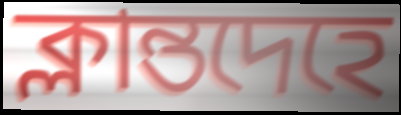
ক্লান্তদেহে